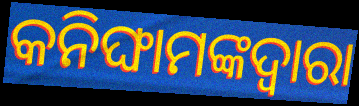
କନିଙ୍ଘାମଙ୍କଦ୍ଵାରା